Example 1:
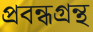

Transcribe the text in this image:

প্রবন্ধগ্রন্থ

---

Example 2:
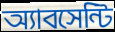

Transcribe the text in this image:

অ্যাবসেন্টি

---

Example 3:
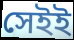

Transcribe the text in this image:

সেইই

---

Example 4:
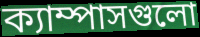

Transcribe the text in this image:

ক্যাম্পাসগুলো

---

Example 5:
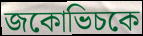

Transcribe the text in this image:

জকোভিচকে